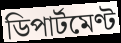
ডিপাৰ্টমেণ্ট